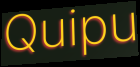
Quipu